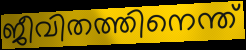
ജീവിതത്തിനെന്ത്